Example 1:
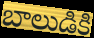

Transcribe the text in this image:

బాలుడికి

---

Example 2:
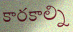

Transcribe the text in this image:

కారకాల్ని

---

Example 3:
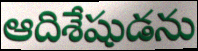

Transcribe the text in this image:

ఆదిశేషుడను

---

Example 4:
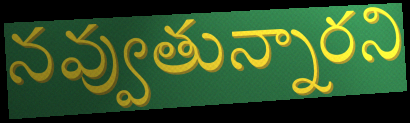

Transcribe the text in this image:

నవ్వుతున్నారని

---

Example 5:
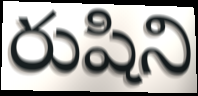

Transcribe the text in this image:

రుషిని